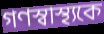
গণস্বাস্থ্যকে